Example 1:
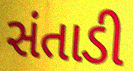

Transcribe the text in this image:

સંતાડી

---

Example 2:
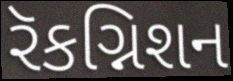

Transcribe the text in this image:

રૅકગ્નિશન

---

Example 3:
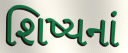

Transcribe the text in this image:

શિષ્યનાં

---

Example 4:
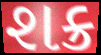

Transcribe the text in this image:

શક્ર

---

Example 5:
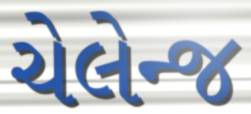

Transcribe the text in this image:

ચેલેન્જ